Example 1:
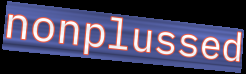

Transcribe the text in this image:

nonplussed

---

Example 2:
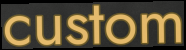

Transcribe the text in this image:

custom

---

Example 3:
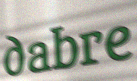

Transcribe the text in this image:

dabre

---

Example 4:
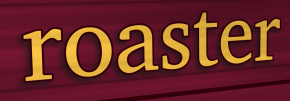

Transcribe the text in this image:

roaster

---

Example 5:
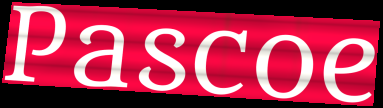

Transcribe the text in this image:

Pascoe